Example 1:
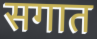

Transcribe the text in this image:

सगात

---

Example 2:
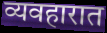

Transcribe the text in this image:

व्यवहारात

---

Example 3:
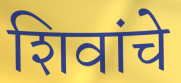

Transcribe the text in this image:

शिवांचे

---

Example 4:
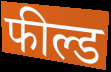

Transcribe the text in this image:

फील्ड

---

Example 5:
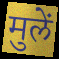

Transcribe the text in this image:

मुलें